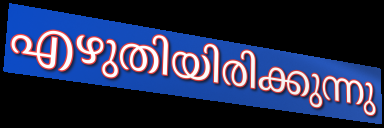
എഴുതിയിരിക്കുന്നു